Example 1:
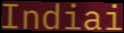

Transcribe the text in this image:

Indiai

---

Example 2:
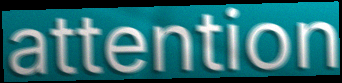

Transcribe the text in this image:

attention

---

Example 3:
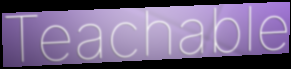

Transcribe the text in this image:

Teachable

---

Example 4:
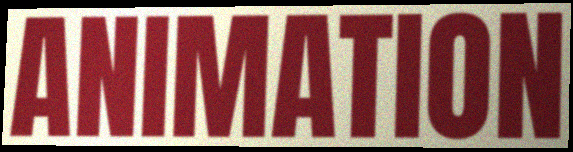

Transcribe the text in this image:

ANIMATION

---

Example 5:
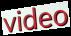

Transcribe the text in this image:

video